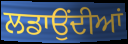
ਲਡਾਉਂਦੀਆਂ